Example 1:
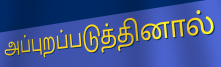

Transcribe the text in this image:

அப்புறப்படுத்தினால்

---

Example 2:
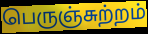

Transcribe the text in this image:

பெருஞ்சுற்றம்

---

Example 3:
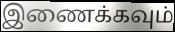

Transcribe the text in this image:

இணைக்கவும்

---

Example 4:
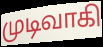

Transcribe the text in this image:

முடிவாகி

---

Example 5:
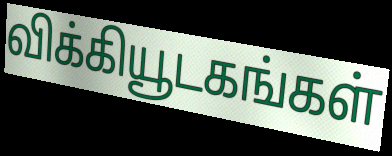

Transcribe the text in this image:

விக்கியூடகங்கள்